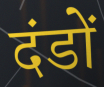
दंडों